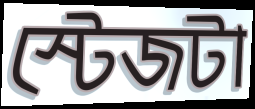
স্টেজটা